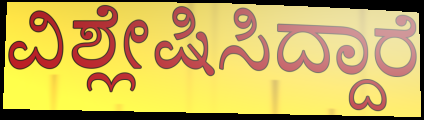
ವಿಶ್ಲೇಷಿಸಿದ್ದಾರೆ